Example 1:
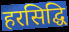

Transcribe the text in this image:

हरसिद्घि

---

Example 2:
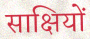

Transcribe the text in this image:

साक्षियों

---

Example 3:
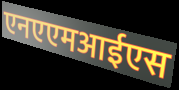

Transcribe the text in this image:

एनएएमआईएस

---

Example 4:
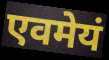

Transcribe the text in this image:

एवमेयं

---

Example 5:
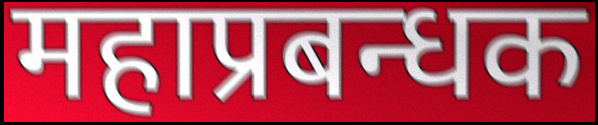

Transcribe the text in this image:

महाप्रबन्धक